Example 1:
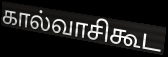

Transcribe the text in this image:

கால்வாசிகூட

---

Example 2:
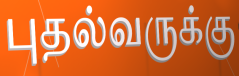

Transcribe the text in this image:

புதல்வருக்கு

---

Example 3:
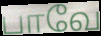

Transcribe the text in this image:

பாவே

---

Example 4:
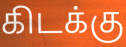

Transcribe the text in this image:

கிடக்கு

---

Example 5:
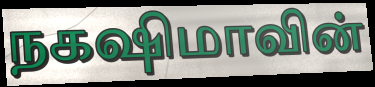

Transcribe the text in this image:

நகஷிமாவின்